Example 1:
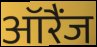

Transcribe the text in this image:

ऑरैंज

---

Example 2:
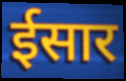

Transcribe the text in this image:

ईसार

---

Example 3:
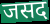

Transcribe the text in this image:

जसद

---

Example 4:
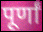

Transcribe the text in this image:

पूर्णां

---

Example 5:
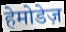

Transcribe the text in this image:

हेमोडेज़